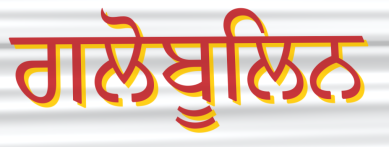
ਗਲੋਬੂਲਿਨ